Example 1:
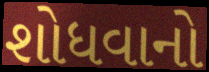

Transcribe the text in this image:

શોધવાનો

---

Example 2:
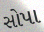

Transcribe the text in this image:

સોપા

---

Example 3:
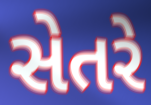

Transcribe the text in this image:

સેતરે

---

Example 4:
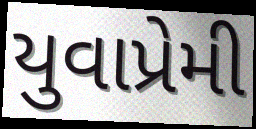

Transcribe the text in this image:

યુવાપ્રેમી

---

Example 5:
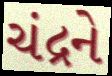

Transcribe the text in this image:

ચંદ્રને